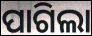
ପାଗିଲା